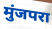
मुंजपरा